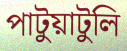
পাটুয়াটুলি